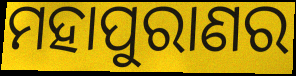
ମହାପୁରାଣର